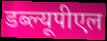
डब्ल्यूपीएल